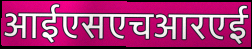
आईएसएचआरएई